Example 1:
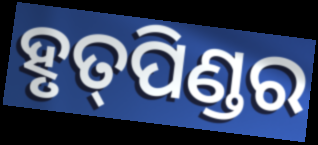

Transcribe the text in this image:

ହୃତ୍‍ପିଣ୍ଡର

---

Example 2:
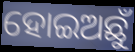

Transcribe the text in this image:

ହୋଇଅଛୁଁ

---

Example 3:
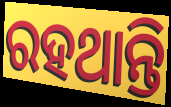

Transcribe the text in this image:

ରହଥାନ୍ତି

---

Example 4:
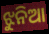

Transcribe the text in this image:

ଝୁନିଆ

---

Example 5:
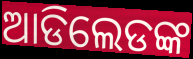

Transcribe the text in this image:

ଆଡିଲେଡଙ୍କ